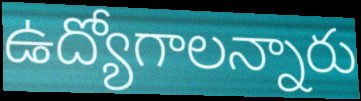
ఉద్యోగాలన్నారు